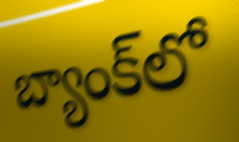
బ్యాంక్‌లో